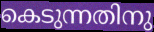
കെടുന്നതിനു